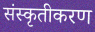
संस्कृतीकरण